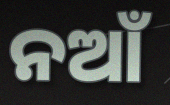
ନଆଁ